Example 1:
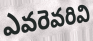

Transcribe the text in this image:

ఎవరెవరివి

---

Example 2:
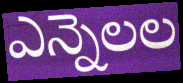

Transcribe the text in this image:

ఎన్నెలల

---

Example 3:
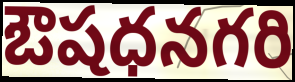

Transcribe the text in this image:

ఔషధనగరి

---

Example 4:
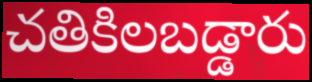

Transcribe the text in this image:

చతికిలబడ్డారు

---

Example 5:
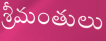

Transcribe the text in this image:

శ్రీమంతులు